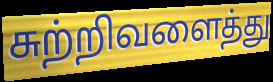
சுற்றிவளைத்து